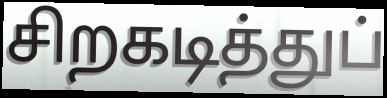
சிறகடித்துப்